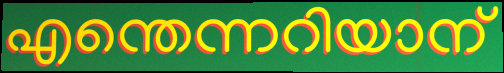
എന്തെന്നറിയാന്